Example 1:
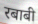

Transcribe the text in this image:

रबाबी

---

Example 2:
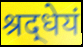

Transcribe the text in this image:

श्रद्धेयं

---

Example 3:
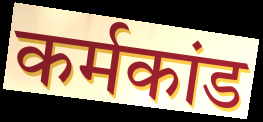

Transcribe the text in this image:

कर्मकांड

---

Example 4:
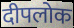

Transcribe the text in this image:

दीपलोक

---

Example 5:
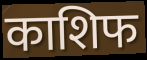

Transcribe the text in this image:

काशिफ